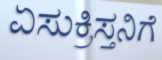
ಏಸುಕ್ರಿಸ್ತನಿಗೆ